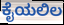
ಕೈಯಲಿಲ